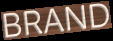
BRAND